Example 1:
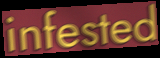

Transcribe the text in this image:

infested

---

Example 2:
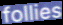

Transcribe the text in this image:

follies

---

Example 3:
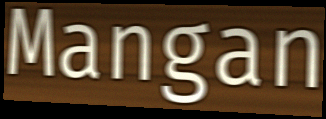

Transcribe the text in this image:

Mangan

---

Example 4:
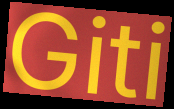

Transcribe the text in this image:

Giti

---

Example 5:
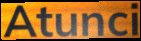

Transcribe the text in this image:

Atunci